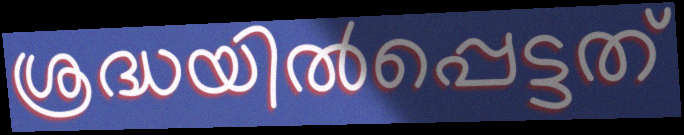
ശ്രദ്ധയിൽപ്പെട്ടത്